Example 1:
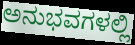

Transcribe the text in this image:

ಅನುಭವಗಳಲ್ಲಿ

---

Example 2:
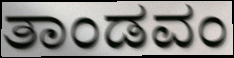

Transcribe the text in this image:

ತಾಂಡವಂ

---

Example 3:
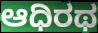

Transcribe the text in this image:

ಆಧಿರಥ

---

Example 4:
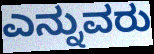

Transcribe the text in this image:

ಎನ್ನುವರು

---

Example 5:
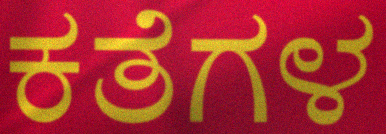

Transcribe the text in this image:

ಕತೆಗಳ